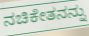
ನಚಿಕೇತನನ್ನು